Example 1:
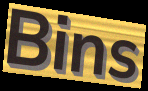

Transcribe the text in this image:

Bins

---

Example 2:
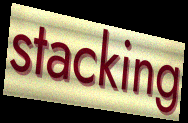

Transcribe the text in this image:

stacking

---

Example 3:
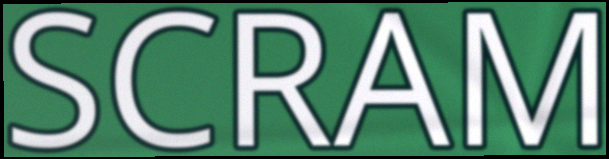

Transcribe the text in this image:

SCRAM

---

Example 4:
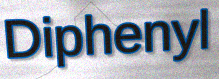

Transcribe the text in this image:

Diphenyl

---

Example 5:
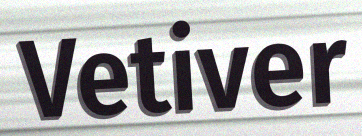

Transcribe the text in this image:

Vetiver